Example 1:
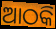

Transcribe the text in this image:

ଆଠକି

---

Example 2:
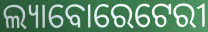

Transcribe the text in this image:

ଲ୍ୟାବୋରେଟେରୀ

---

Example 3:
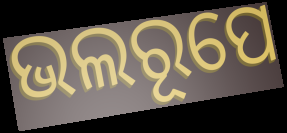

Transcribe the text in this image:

ଭଲରୂପେ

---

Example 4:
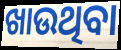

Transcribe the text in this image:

ଖାଉଥିବା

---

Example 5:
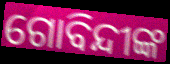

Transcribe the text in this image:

ଗୋବିନ୍ଦୀଙ୍କ